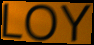
LOY